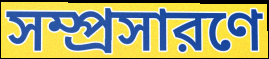
সম্প্রসারণে